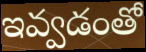
ఇవ్వడంతో